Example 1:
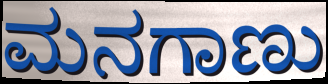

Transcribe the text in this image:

ಮನಗಾಣು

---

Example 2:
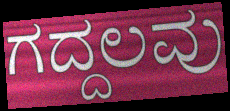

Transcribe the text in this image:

ಗದ್ದಲವು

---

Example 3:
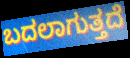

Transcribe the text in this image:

ಬದಲಾಗುತ್ತದೆ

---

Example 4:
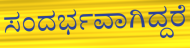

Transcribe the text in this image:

ಸಂದರ್ಭವಾಗಿದ್ದರೆ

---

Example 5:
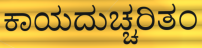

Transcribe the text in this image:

ಕಾಯದುಚ್ಚರಿತಂ